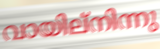
വായില്നിന്നു